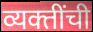
व्‍यक्‍तींची